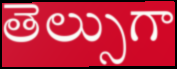
తెల్సుగా